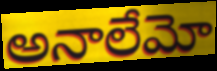
అనాలేమో